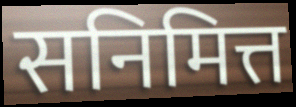
सनिमित्त